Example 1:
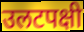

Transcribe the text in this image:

उलटपक्षी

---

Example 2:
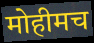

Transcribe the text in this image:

मोहीमच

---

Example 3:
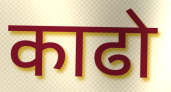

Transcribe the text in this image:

काढो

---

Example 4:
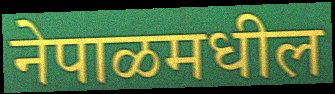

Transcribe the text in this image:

नेपाळमधील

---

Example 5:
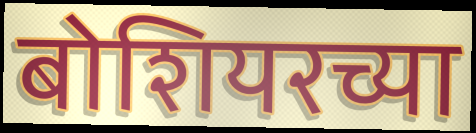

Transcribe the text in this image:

बोशियरच्या